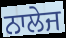
ਨਾਲੇਜ